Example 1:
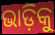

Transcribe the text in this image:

ଭାଡ଼ିକୁ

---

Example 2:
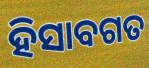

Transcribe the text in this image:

ହିସାବଗତ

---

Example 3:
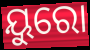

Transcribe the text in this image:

ୟୁରୋ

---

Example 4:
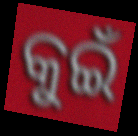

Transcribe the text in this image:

କୁଇଁ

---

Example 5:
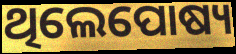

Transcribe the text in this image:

ଥିଲେପୋଷ୍ୟ